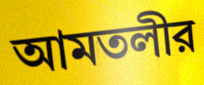
আমতলীর